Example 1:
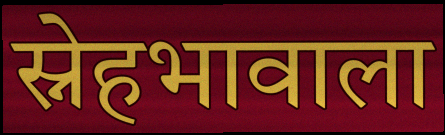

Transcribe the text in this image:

स्नेहभावाला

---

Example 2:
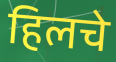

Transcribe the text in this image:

हिलचे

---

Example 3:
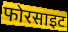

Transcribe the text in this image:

फोरसाइट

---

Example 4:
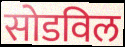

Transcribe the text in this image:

सोडविल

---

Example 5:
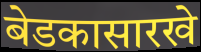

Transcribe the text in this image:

बेडकासारखे